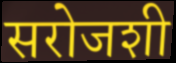
सरोजशी